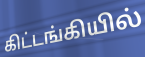
கிட்டங்கியில்